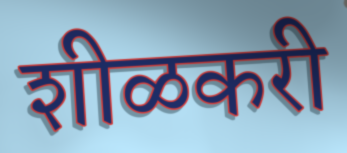
शीळकरी